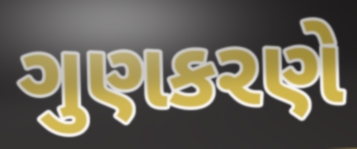
ગુણકરણે